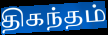
திகந்தம்